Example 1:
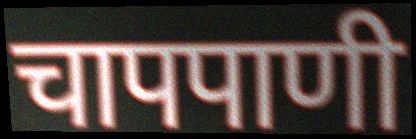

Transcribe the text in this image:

चापपाणी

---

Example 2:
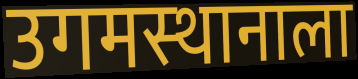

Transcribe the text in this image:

उगमस्थानाला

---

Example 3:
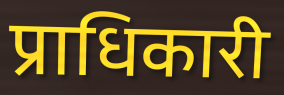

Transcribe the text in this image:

प्राधिकारी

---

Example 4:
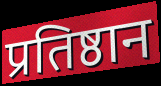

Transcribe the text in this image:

प्रतिष्ठान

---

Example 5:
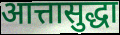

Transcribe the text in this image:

आत्तासुद्धा